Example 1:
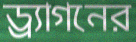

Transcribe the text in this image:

ড্র্যাগনের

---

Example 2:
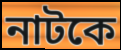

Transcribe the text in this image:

নাটকে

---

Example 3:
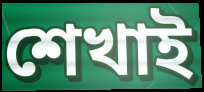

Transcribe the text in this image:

শেখাই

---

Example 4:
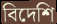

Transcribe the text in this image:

বিদেশি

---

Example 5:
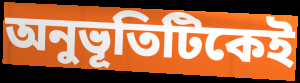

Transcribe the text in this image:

অনুভূতিটিকেই